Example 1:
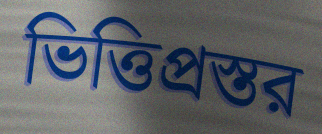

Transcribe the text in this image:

ভিত্তিপ্রস্তর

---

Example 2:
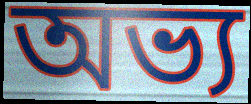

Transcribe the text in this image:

অভ্য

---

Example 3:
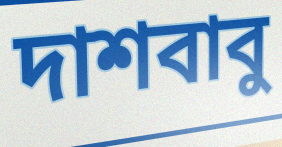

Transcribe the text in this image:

দাশবাবু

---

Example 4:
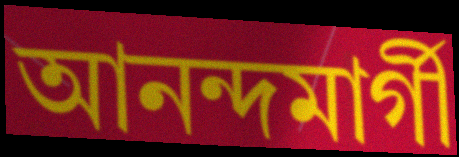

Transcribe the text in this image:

আনন্দমার্গী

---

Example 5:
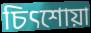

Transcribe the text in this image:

চিৎশোয়া